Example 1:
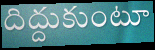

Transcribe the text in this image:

దిద్దుకుంటూ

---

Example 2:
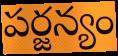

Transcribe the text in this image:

పర్జన్యం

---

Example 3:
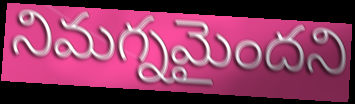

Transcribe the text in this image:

నిమగ్నమైందని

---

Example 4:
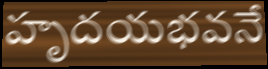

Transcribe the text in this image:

హృదయభవనే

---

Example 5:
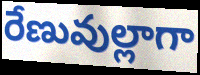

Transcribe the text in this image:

రేణువుల్లాగా